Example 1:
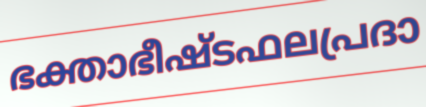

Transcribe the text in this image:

ഭക്താഭീഷ്ടഫലപ്രദാ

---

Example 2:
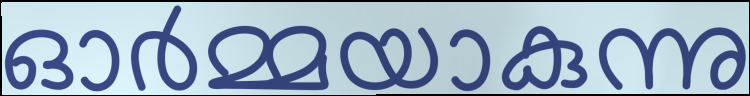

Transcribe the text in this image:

ഓർമ്മയാകുന്നു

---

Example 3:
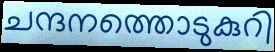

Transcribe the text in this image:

ചന്ദനത്തൊടുകുറി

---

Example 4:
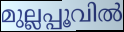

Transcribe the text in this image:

മുല്ലപ്പൂവിൽ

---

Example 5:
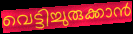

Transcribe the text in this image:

വെട്ടിച്ചുരുക്കാൻ